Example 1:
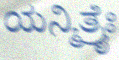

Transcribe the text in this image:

ಯನ್ಮಿತ್ರೈಃ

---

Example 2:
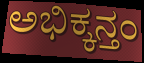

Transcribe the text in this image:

ಅಭಿಕ್ಕನ್ತಂ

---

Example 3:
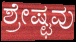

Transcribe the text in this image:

ಶ್ರೇಷ್ಟವು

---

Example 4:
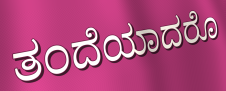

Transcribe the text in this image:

ತಂದೆಯಾದರೊ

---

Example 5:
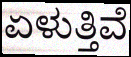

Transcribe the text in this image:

ಏಳುತ್ತಿವೆ